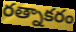
రత్నాకరం